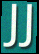
JJ